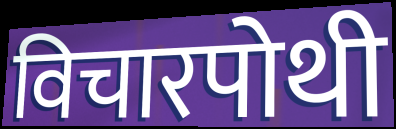
विचारपोथी